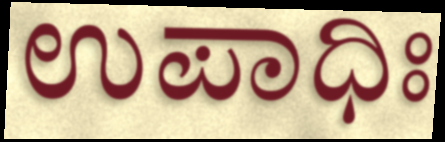
ಉಪಾಧಿಃ